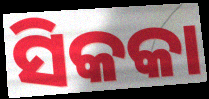
ସିକକା